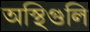
অস্থিগুলি